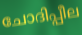
ചോദിപ്പീല